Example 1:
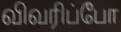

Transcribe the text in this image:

விவரிப்போ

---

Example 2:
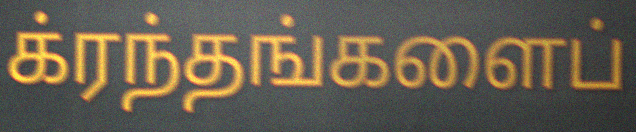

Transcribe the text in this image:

க்ரந்தங்களைப்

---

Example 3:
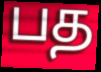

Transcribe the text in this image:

பத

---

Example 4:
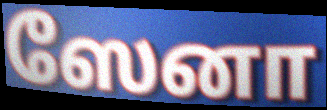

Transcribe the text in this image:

ஸேனா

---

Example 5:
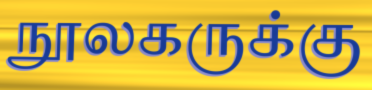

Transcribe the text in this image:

நூலகருக்கு